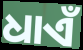
ଧାଏଁ